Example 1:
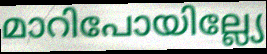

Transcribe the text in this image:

മാറിപോയില്ല്യേ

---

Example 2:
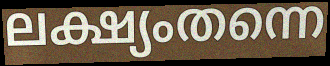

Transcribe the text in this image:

ലക്ഷ്യംതന്നെ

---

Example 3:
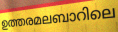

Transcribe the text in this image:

ഉത്തരമലബാറിലെ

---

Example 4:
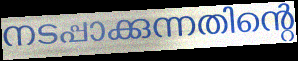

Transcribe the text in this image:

നടപ്പാക്കുന്നതിന്റെ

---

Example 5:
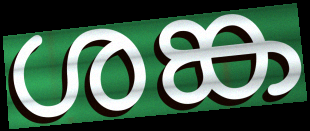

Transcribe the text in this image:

ശങ്ക